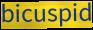
bicuspid